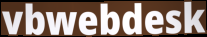
vbwebdesk